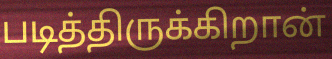
படித்திருக்கிறான்